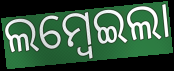
ଲମ୍ବେଇଲା